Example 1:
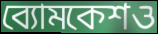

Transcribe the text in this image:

ব্যোমকেশও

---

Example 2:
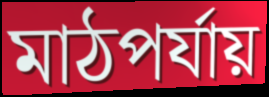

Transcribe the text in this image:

মাঠপর্যায়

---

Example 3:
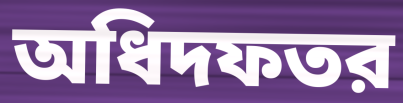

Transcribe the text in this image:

অধিদফতর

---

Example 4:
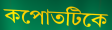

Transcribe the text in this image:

কপোতটিকে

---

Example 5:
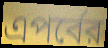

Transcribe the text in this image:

এপর্বের